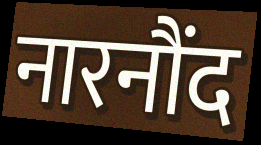
नारनौंद